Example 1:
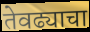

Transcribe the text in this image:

तेवढ्याचा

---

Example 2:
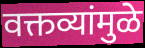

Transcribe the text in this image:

वक्तव्यांमुळे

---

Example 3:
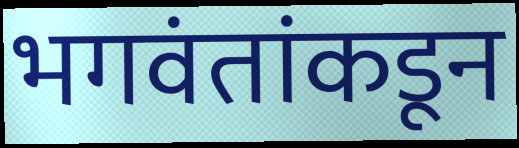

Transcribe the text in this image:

भगवंतांकडून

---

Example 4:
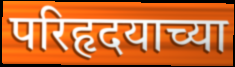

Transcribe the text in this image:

परिहृदयाच्या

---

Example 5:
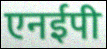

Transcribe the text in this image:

एनईपी